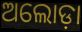
ଅଲୋଡ଼ା